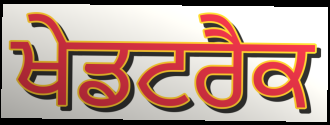
ਖੇਡਟਰੈਕ